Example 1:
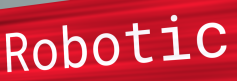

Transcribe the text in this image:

Robotic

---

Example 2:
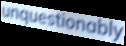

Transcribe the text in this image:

unquestionably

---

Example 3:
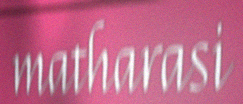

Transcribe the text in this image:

matharasi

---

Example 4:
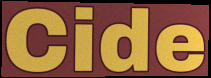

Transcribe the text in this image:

Cide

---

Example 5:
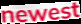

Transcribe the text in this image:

newest